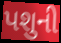
પશુની